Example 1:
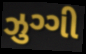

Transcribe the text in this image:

ઝુગ્ગી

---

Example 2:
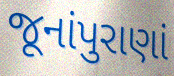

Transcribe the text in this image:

જૂનાંપુરાણાં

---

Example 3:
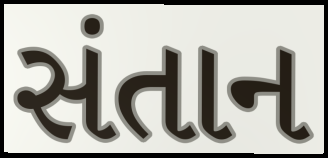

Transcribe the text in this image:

સંતાન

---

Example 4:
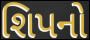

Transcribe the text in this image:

શિપનો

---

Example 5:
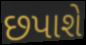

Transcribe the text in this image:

છપાશે